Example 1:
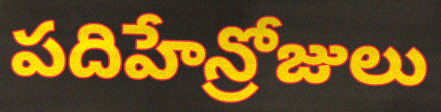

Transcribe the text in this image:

పదిహేన్రోజులు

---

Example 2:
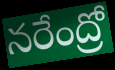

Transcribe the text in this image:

నరేంద్రో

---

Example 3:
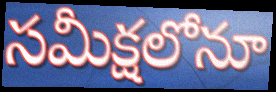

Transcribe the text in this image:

సమీక్షలోనూ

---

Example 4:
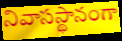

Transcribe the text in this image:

నివాసస్థానంగా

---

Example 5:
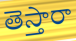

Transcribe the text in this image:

తెస్తారా